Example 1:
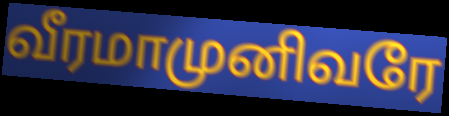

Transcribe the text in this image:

வீரமாமுனிவரே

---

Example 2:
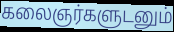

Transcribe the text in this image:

கலைஞர்களுடனும்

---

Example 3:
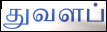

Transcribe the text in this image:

துவளப்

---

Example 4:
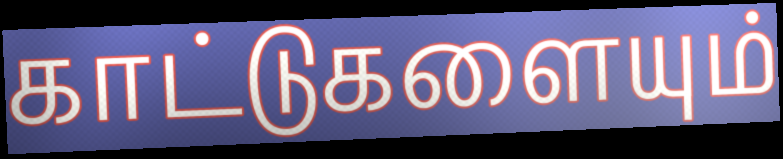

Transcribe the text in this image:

காட்டுகளையும்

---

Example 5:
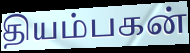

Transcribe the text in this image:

தியம்பகன்